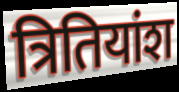
त्रितियांश